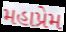
મહાપ્રેમ